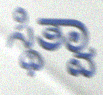
ಸ್ಥಿತ್ವಾ